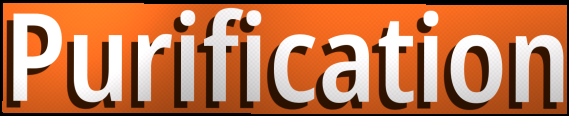
Purification